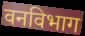
वनविभाग